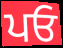
ਪਓ